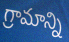
గ్రామాన్ని